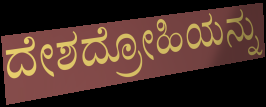
ದೇಶದ್ರೋಹಿಯನ್ನು